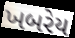
ખબરેય